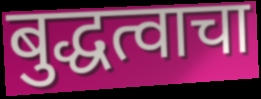
बुद्धत्वाचा